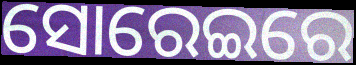
ସୋରେଇରେ